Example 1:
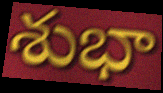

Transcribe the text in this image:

శుభా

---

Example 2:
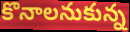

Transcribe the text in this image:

కొనాలనుకున్న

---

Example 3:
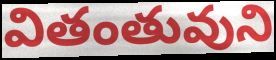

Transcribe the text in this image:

వితంతువుని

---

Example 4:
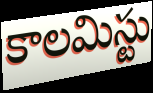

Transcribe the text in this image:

కాలమిస్టు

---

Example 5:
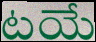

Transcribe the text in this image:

టయే